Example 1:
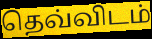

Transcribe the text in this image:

தெவ்விடம்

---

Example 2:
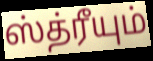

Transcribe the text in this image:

ஸ்த்ரீயும்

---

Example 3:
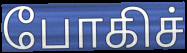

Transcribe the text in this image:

போகிச்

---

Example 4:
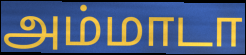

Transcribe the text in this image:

அம்மாடா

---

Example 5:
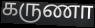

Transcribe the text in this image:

கருணா